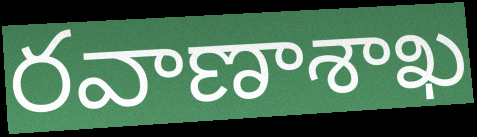
రవాణాశాఖ